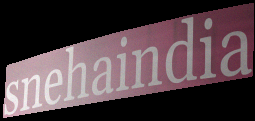
snehaindia